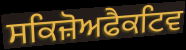
ਸਕਿਜ਼ੋਅਫੈਕਟਿਵ